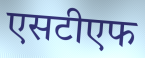
एसटीएफ